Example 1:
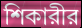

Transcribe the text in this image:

শিকারীর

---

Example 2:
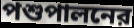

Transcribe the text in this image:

পশুপালনের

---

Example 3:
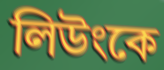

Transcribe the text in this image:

লিউংকে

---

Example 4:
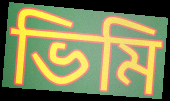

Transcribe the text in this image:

ভিমি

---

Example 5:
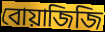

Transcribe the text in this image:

বোয়াজিজি